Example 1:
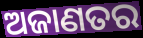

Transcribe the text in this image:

ଅଜାଣତର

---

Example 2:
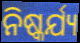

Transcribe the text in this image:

ନିଷ୍କର୍ଯ୍ୟ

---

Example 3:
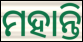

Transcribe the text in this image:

ମହାନ୍ତି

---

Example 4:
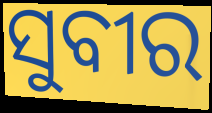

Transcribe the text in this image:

ସୁବୀର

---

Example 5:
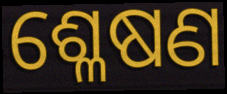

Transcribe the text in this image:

ଶ୍ଳେଷଣ